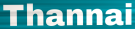
Thannai